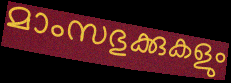
മാംസഭുക്കുകളും